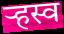
ऱ्हस्व